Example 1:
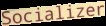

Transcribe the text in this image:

Socializer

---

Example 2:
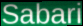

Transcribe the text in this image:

Sabari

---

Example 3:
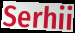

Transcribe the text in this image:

Serhii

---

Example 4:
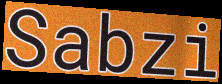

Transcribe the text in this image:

Sabzi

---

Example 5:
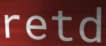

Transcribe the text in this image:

retd